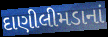
દાણીલીમડાનાં